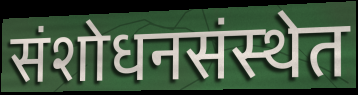
संशोधनसंस्थेत